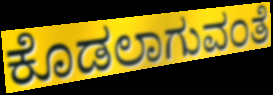
ಕೊಡಲಾಗುವಂತೆ